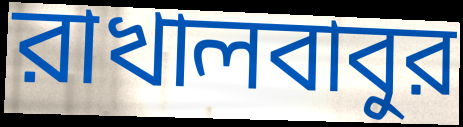
রাখালবাবুর